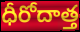
ధీరోదాత్త